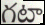
గటా